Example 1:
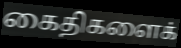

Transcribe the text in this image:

கைதிகளைக்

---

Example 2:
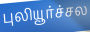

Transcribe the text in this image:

புலியூர்ச்சல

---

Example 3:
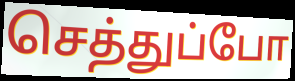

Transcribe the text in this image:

செத்துப்போ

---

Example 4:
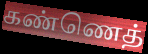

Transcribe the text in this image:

கண்ணெத்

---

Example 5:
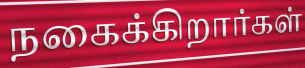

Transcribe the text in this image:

நகைக்கிறார்கள்